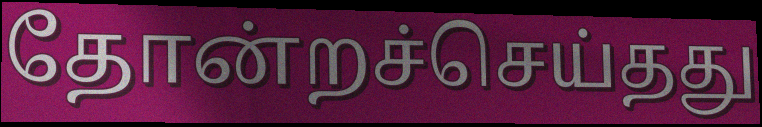
தோன்றச்செய்தது